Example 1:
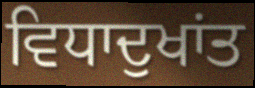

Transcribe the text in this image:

ਵਿਧਾਦੁਖਾਂਤ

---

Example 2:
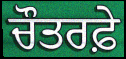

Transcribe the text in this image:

ਚੌਤਰਫ਼ੇ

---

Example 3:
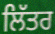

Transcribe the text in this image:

ਲਿੱਤਰ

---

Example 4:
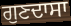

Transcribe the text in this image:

ਗੁਣਦਾਸਾ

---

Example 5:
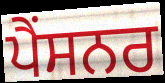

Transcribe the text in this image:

ਪੈਂਸਨਰ